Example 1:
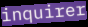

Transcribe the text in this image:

inquirer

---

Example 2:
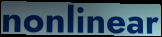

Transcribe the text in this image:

nonlinear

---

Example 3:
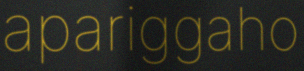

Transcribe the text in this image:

apariggaho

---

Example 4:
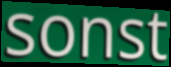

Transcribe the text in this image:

sonst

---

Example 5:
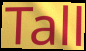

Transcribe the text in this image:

Tall